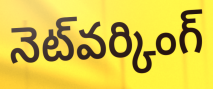
నెట్‌వర్కింగ్